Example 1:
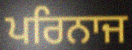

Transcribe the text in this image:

ਪਰਿਨਾਜ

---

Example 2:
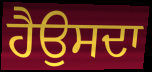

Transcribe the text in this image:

ਹੈਉਸਦਾ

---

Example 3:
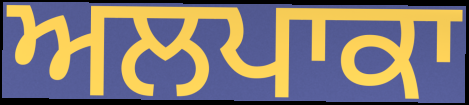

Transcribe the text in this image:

ਅਲਪਾਕਾ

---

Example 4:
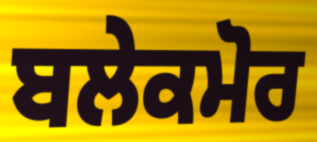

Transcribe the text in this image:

ਬਲੇਕਮੋਰ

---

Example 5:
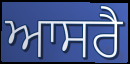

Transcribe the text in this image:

ਆਸਰੈ